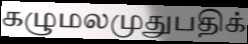
கழுமலமுதுபதிக்